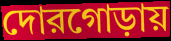
দোরগোড়ায়